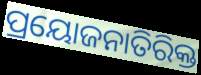
ପ୍ରୟୋଜନାତିରିକ୍ତ